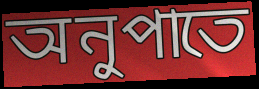
অনুপাতে